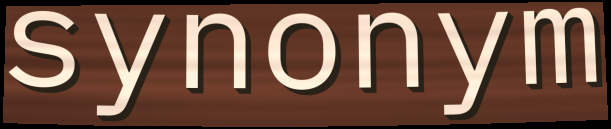
synonym